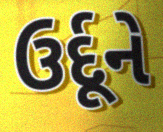
ઉર્દૂને